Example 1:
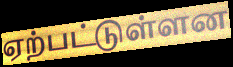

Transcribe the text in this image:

ஏற்பட்டுள்ளன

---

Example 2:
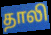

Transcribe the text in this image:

தாலி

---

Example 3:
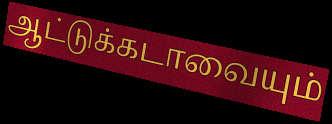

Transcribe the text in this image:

ஆட்டுக்கடாவையும்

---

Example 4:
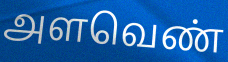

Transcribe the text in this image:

அளவெண்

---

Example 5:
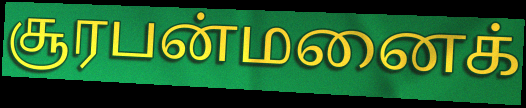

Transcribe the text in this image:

சூரபன்மனைக்